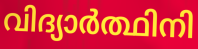
വിദ്യാർത്ഥിനി